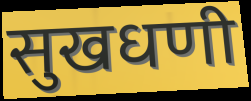
सुखधणी